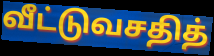
வீட்டுவசதித்